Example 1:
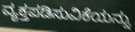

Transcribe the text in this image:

ವ್ಯಕ್ತಪಡಿಸುವಿಕೆಯನ್ನು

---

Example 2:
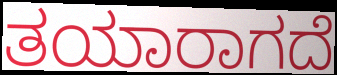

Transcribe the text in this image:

ತಯಾರಾಗದೆ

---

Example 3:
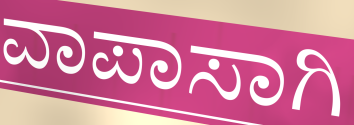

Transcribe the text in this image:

ವಾಪಾಸಾಗಿ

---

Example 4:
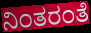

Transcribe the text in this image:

ನಿಂತರಂತೆ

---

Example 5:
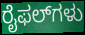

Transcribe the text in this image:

ರೈಫಲ್‌ಗಳು